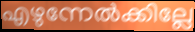
എഴുന്നേൽക്കില്ലേ